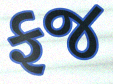
ફજ